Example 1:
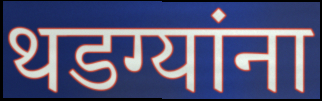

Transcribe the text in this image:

थडग्यांना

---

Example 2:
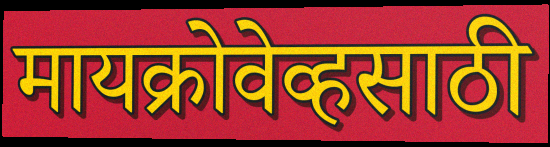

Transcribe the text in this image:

मायक्रोवेव्हसाठी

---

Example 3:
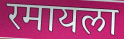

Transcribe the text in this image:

रमायला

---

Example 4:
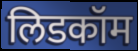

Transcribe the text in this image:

लिडकॉम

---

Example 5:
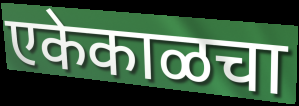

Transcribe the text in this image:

एकेकाळचा